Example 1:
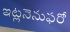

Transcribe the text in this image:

ఇట్లనెనుఫరో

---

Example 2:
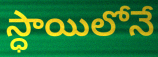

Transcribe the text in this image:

స్ధాయిలోనే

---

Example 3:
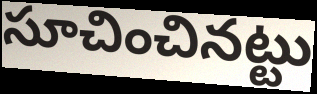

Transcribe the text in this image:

సూచించినట్టు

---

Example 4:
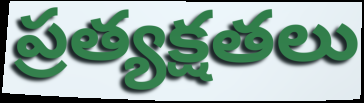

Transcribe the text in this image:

ప్రత్యక్షతలు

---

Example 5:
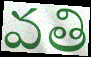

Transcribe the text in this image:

వతి